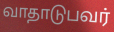
வாதாடுபவர்